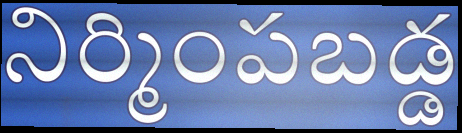
నిర్మింపబడ్డ